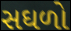
સઘળો